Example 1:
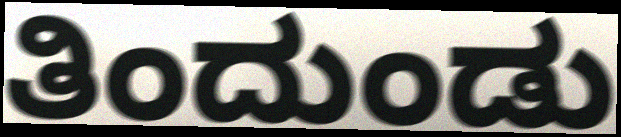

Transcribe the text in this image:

ತಿಂದುಂಡು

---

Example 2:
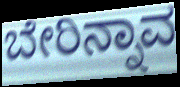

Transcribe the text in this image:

ಬೇರಿನ್ನಾವ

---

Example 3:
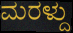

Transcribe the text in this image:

ಮರಳ್ದು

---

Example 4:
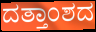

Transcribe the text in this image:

ದತ್ತಾಂಶದ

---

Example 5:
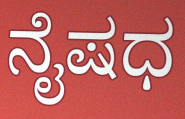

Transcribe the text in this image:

ನೈಷಧ